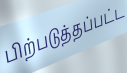
பிற்படுத்தப்பட்ட